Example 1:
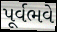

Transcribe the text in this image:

પૂર્વભવે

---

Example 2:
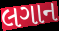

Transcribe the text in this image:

લગાન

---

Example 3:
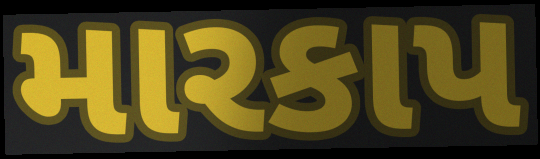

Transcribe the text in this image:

મારકાપ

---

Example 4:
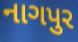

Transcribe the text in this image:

નાગપુર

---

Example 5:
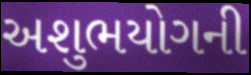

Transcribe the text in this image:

અશુભયોગની